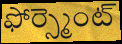
ఫోర్స్మెంట్